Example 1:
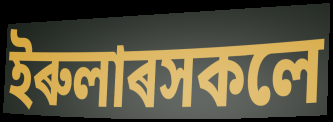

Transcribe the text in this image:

ইৰুলাৰসকলে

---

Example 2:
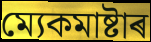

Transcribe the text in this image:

ম্যেকমাষ্টাৰ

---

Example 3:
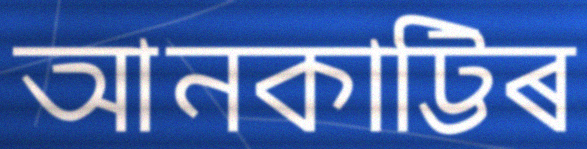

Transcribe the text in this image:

আনকাট্টিৰ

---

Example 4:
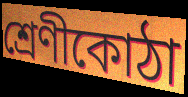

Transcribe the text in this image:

শ্ৰেণীকোঠা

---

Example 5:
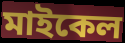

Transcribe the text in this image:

মাইকেল